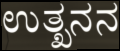
ಉತ್ಖನನ